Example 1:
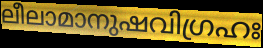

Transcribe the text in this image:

ലീലാമാനുഷവിഗ്രഹഃ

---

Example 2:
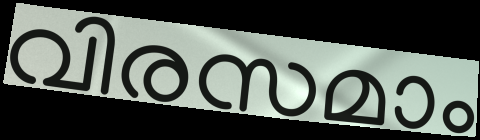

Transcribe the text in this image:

വിരസമാം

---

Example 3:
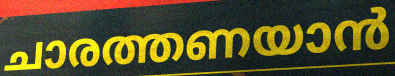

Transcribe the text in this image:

ചാരത്തണയാൻ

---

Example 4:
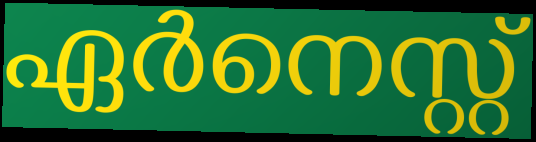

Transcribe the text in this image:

ഏർനെസ്റ്റ്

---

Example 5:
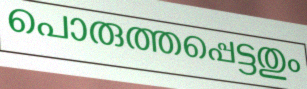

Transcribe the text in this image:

പൊരുത്തപ്പെട്ടതും